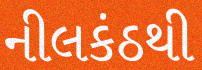
નીલકંઠથી